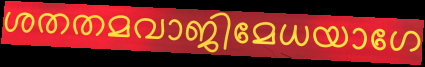
ശതതമവാജിമേധയാഗേ